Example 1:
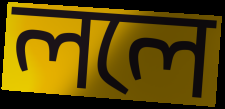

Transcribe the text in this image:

ললে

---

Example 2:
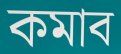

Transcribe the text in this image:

কমাব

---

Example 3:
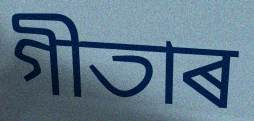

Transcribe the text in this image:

গীতাৰ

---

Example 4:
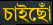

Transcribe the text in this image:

চাইছোঁ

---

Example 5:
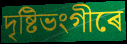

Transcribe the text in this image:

দৃষ্টিভংগীৰে